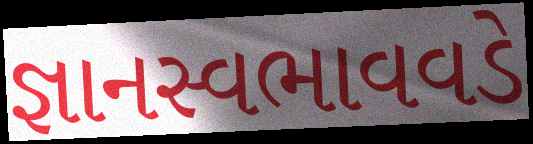
જ્ઞાનસ્વભાવવડે